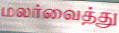
மலர்வைத்து